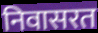
निवासरत